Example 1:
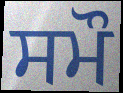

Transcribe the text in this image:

ਸਮੌ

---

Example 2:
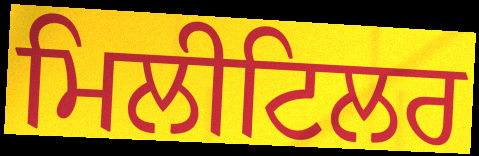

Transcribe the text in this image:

ਮਿਲੀਟਿਲਰ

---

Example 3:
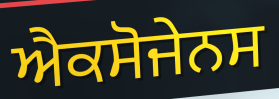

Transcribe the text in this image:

ਐਕਸੋਜੇਨਸ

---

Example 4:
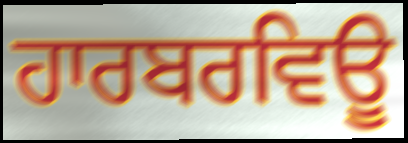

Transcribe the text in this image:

ਹਾਰਬਰਵਿਊ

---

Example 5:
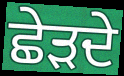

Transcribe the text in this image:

ਛੇੜਦੇ